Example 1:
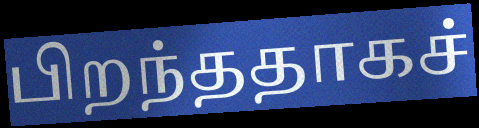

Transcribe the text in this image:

பிறந்ததாகச்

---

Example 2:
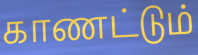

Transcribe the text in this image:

காணட்டும்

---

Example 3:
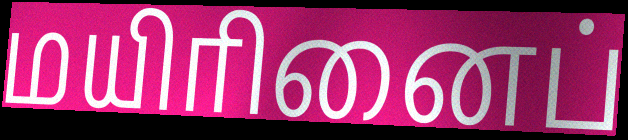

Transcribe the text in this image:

மயிரினைப்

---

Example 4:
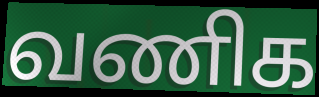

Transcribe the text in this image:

வணிக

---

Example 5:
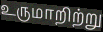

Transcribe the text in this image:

உருமாறிற்று